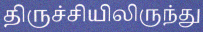
திருச்சியிலிருந்து